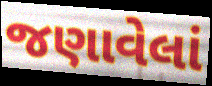
જણાવેલાં